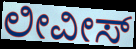
ಲೀವೀಸ್